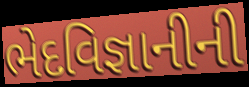
ભેદવિજ્ઞાનીની